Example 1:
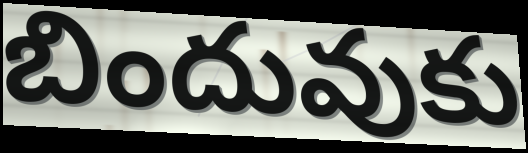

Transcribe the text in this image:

బిందువుకు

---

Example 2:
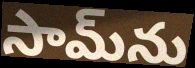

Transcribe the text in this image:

సామ్‌ను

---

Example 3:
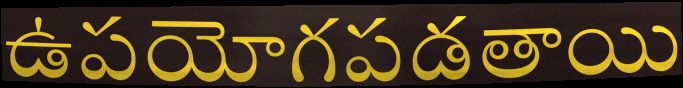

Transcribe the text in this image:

ఉపయోగపడతాయి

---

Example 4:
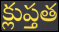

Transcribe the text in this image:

క్లుప్తత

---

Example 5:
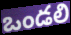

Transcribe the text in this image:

ఒండలి